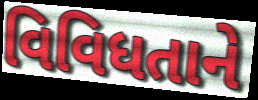
વિવિધતાને